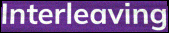
Interleaving